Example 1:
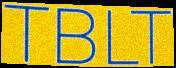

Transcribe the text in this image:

TBLT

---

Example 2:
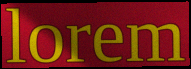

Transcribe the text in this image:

lorem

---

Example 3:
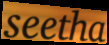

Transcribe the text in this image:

seetha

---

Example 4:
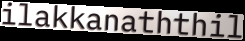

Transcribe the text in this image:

ilakkanaththil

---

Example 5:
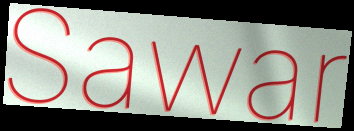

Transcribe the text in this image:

Sawar